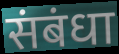
संबंधा